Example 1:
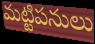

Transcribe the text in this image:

మట్టిపనులు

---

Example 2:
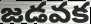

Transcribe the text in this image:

జడవక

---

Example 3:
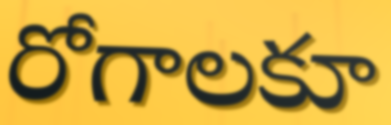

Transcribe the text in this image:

రోగాలకూ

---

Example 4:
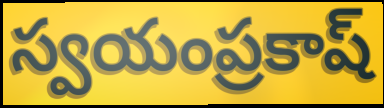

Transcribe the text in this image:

స్వయంప్రకాష్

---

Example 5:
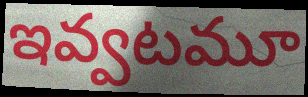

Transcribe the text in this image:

ఇవ్వటమూ